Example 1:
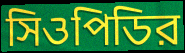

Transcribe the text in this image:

সিওপিডির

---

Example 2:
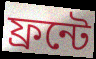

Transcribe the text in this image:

ফ্রন্টে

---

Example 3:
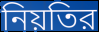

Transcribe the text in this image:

নিয়তির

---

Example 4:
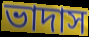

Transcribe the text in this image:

ভাদাস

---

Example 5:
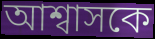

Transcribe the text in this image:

আশ্বাসকে